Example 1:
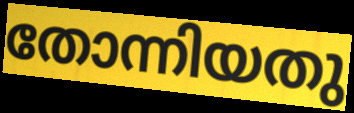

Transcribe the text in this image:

തോന്നിയതു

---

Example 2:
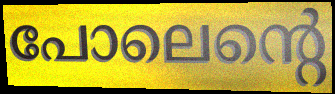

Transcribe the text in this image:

പോലെന്റെ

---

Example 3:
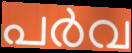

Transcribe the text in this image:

പർവ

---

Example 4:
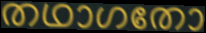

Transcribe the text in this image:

തഥാഗതോ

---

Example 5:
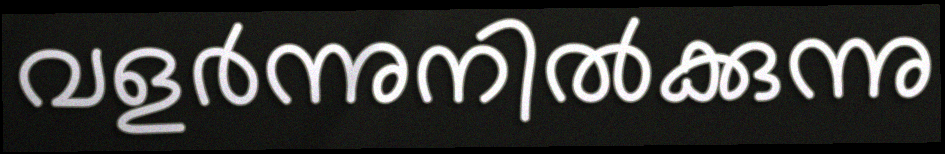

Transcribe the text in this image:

വളർന്നുനിൽക്കുന്നു